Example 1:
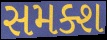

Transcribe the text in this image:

સમક્શ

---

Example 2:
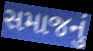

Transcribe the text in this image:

સમાજનું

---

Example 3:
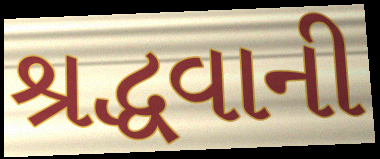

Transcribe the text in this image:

શ્રદ્ધવાની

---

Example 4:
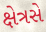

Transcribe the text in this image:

ક્ષેત્રસે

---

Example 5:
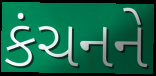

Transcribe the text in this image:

કંચનને